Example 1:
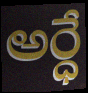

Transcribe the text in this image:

అర్ధే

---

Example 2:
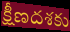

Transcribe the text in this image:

క్షీణదశకు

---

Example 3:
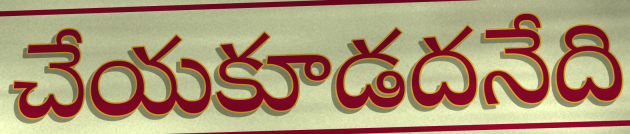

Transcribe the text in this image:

చేయకూడదనేది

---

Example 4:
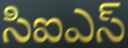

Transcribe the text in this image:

సిఐఎస్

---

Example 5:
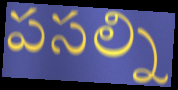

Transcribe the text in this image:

పసల్ని